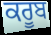
ਕਰੂਬ